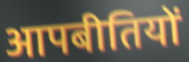
आपबीतियों